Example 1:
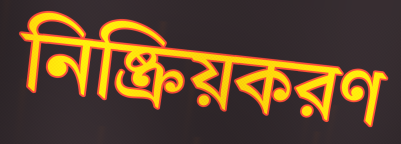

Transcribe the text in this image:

নিষ্ক্রিয়করণ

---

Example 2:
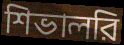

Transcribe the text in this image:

শিভালরি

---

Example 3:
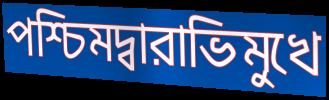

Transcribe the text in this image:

পশ্চিমদ্বারাভিমুখে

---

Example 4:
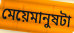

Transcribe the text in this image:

মেয়েমানুষটা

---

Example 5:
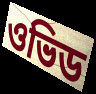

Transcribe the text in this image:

ওভিড